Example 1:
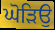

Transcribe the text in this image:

ਘੋੜਿਉ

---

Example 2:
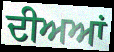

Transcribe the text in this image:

ਦੀਅਆਂ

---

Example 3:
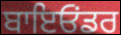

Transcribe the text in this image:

ਬਾਇਓਂਡਰ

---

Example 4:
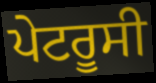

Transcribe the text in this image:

ਪੇਟਰੂਸੀ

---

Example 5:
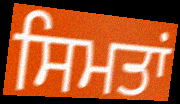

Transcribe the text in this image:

ਸਿਮਤਾਂ